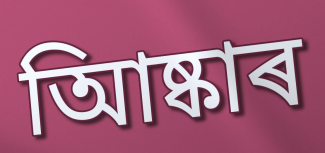
আিষ্কাৰ